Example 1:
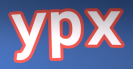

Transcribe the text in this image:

ypx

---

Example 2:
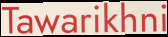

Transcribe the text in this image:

Tawarikhni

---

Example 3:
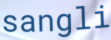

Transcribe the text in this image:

sangli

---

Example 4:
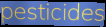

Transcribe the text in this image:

pesticides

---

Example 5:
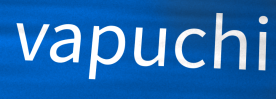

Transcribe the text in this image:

vapuchi